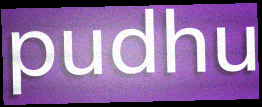
pudhu